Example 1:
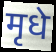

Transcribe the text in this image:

मृधे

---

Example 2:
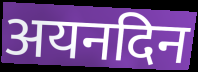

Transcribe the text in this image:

अयनदिन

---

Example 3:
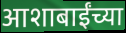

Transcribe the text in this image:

आशाबाईंच्या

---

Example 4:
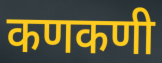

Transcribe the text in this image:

कणकणी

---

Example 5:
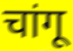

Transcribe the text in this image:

चांगू